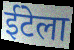
ईटेला